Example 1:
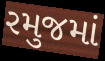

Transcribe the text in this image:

રમુજમાં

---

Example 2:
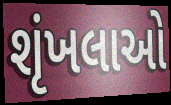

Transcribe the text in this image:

શૃંખલાઓ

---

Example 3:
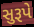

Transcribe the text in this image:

સુરૂપે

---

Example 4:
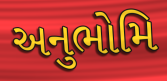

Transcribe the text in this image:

અનુભોમિ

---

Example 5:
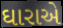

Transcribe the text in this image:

ઘારાએ